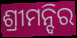
ଶ୍ରୀମନ୍ଦିର